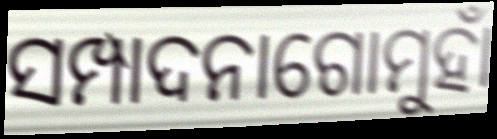
ସମ୍ପାଦନାଗୋମୁହାଁ